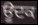
ਊਦਕ